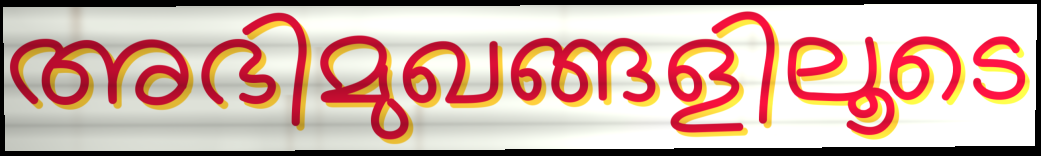
അഭിമുഖങ്ങളിലൂടെ